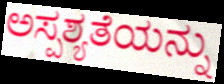
ಅಸ್ಪಶ್ಯತೆಯನ್ನು